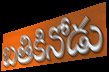
బతికినోడు